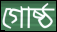
গোষ্ঠ